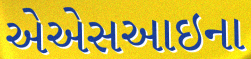
એએસઆઇના